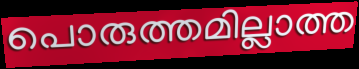
പൊരുത്തമില്ലാത്ത